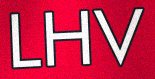
LHV